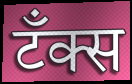
टँक्स